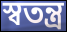
স্ৱতন্ত্ৰ